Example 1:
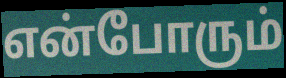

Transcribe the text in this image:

என்போரும்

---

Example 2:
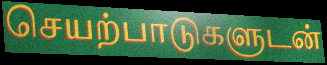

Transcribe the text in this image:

செயற்பாடுகளுடன்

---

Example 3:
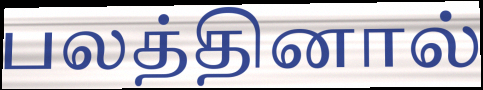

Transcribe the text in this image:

பலத்தினால்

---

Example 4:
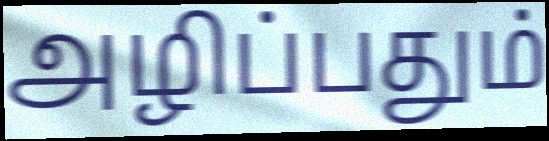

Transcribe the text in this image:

அழிப்பதும்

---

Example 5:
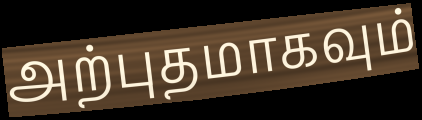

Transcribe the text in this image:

அற்புதமாகவும்